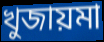
খুজায়মা